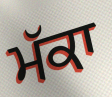
ਮੱਕਾ